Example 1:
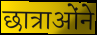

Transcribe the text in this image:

छात्राओंने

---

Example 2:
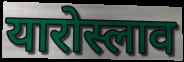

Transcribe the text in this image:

यारोस्लाव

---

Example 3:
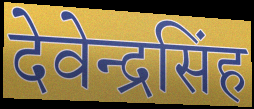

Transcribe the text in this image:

देवेन्द्रसिंह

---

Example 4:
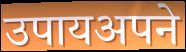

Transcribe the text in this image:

उपायअपने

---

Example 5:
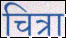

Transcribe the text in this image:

चित्रा